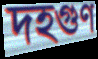
দহগুণ